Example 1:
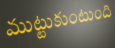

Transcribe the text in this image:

ముట్టుకుంటుంది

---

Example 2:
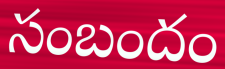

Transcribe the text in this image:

సంబందం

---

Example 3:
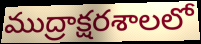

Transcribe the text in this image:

ముద్రాక్షరశాలలో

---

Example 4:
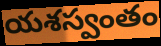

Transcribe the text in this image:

యశస్వంతం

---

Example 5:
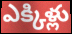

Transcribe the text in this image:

ఎక్కిళ్లు